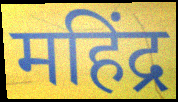
महिंद्र